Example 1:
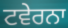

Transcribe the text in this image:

ਟਵੇਰਨਾ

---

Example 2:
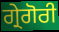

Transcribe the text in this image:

ਗ੍ਰੇਗੋਰੀ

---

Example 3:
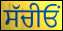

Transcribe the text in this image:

ਸੱਚੀਓਂ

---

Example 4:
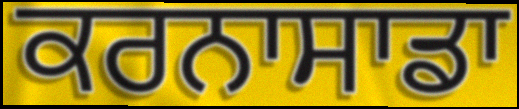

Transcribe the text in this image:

ਕਰਨਾਸਾਡਾ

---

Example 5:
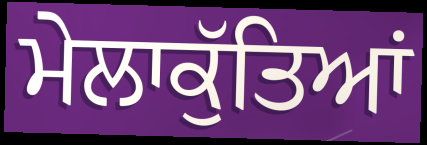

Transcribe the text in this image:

ਮੇਲਾਕੁੱਤਿਆਂ